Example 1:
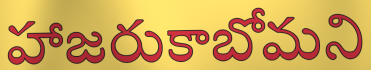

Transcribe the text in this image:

హాజరుకాబోమని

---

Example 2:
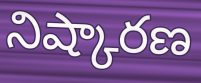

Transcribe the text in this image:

నిష్కారణ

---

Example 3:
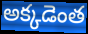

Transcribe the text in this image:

అక్కడెంత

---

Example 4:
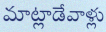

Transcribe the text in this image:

మాట్లాడేవాళ్లు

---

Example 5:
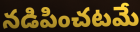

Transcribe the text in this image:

నడిపించటమే